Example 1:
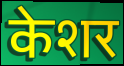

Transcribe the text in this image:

केशर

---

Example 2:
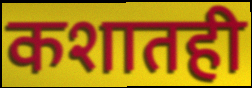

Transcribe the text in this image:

कशातही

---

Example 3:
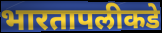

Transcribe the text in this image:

भारतापलीकडे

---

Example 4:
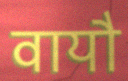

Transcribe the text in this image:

वायौ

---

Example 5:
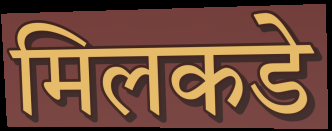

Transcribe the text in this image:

मिलकडे